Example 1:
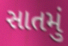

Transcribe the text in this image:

સાતમું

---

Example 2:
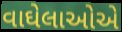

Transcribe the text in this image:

વાઘેલાઓએ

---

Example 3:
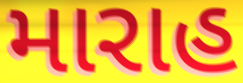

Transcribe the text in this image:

મારાહ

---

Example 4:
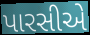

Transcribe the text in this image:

પારસીએ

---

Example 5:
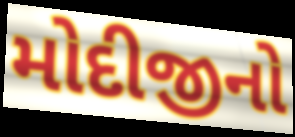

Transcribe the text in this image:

મોદીજીનો